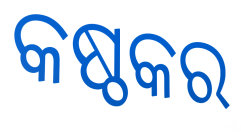
କଷ୍ଠକର